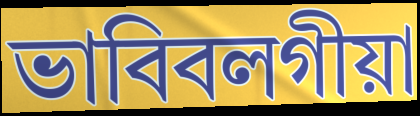
ভাবিবলগীয়া